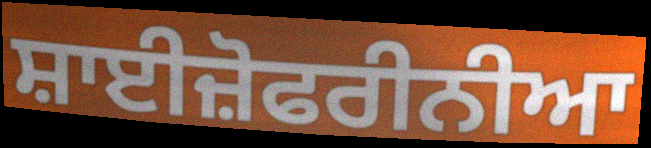
ਸ਼ਾਈਜ਼ੋਫਰੀਨੀਆ